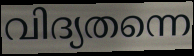
വിദ്യതന്നെ